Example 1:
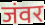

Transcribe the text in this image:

जंवर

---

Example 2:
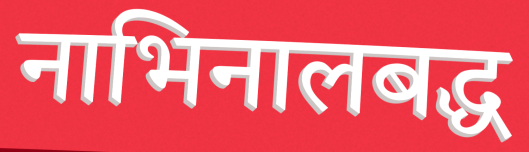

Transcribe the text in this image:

नाभिनालबद्ध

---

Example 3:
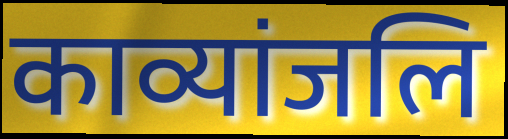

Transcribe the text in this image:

काव्यांजलि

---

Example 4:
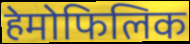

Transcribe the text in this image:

हेमोफिलिक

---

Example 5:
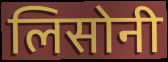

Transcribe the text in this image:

लिसोनी